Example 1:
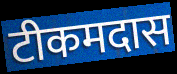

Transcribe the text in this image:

टीकमदास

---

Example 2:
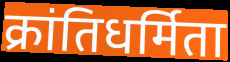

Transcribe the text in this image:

क्रांतिधर्मिता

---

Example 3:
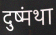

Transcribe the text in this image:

दुष्मंथा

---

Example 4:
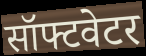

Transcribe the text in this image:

सॉफ्टवेटर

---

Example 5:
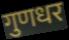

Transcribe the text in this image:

गुणधर